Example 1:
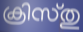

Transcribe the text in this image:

ക്രിസ്തു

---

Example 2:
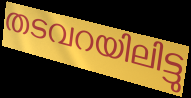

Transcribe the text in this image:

തടവറയിലിട്ടു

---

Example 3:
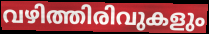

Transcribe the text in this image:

വഴിത്തിരിവുകളും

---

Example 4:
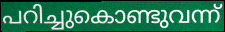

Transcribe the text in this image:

പറിച്ചുകൊണ്ടുവന്ന്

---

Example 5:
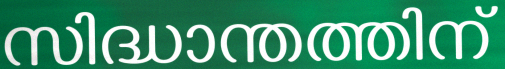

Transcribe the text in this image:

സിദ്ധാന്തത്തിന്